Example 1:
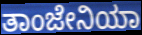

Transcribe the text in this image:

ತಾಂಜೇನಿಯಾ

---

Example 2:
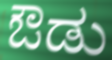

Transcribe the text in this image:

ಔಡು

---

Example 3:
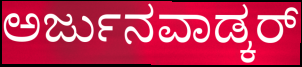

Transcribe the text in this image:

ಅರ್ಜುನವಾಡ್ಕರ್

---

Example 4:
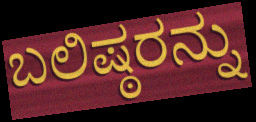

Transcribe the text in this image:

ಬಲಿಷ್ಠರನ್ನು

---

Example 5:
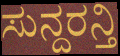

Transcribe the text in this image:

ಸುನ್ದರನ್ತಿ